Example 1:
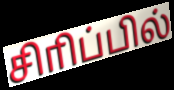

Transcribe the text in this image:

சிரிப்பில்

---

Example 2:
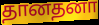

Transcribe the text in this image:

தானதனா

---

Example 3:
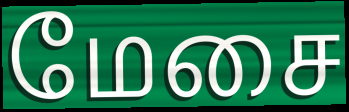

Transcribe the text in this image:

மேசை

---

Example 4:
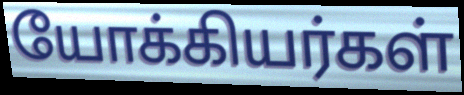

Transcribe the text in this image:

யோக்கியர்கள்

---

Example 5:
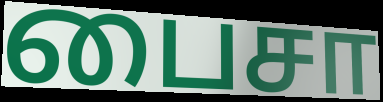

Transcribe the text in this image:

பைசா